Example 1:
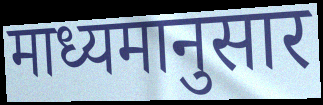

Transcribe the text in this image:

माध्यमानुसार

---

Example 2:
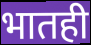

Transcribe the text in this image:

भातही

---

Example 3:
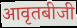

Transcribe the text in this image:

आवृतबीजी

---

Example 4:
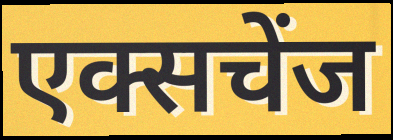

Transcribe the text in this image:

एक्सचेंज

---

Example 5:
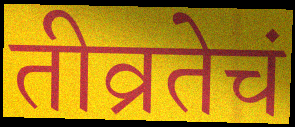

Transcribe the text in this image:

तीव्रतेचं